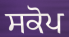
ਸਕੋਪ